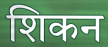
शिकन